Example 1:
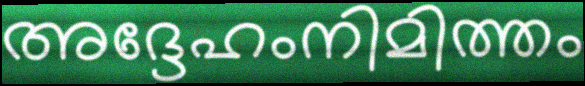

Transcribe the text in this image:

അദ്ദേഹംനിമിത്തം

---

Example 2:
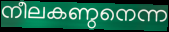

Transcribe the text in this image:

നീലകണ്ഠനെന്ന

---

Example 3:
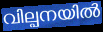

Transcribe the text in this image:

വില്പനയിൽ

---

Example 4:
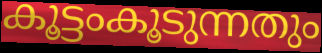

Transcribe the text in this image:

കൂട്ടംകൂടുന്നതും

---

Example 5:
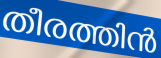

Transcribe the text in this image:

തീരത്തിൻ